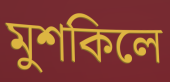
মুশকিলে